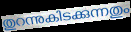
തുറന്നുകിടക്കുന്നതും